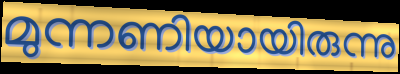
മുന്നണിയായിരുന്നു